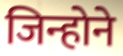
जिन्‍होने